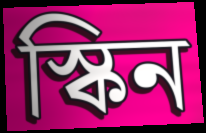
স্কিন